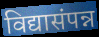
विद्यासंपन्न